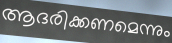
ആദരിക്കണമെന്നും